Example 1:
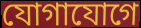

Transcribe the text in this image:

যোগাযোগে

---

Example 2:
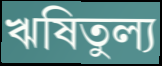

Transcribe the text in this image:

ঋষিতুল্য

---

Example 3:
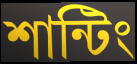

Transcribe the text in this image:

শান্টিং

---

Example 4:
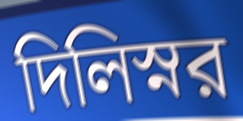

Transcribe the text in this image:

দিলিস্নর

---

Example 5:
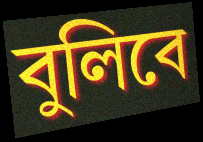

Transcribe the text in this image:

বুলিবে